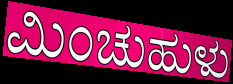
ಮಿಂಚುಹುಳು